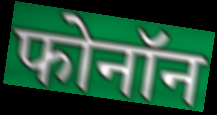
फोनॉन